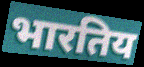
भारतिय